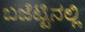
ಬಜೆಟ್ಟಿನಲ್ಲಿ